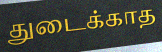
துடைக்காத